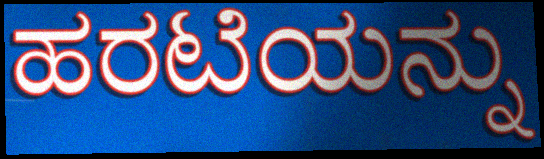
ಹರಟೆಯನ್ನು